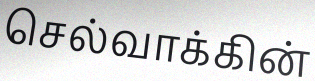
செல்வாக்கின்